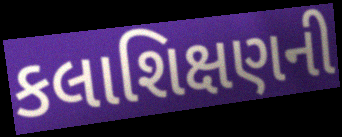
કલાશિક્ષણની